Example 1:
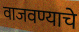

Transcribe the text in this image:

वाजवण्याचे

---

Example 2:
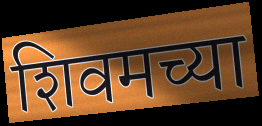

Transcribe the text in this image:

शिवमच्या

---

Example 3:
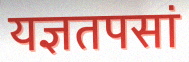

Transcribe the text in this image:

यज्ञतपसां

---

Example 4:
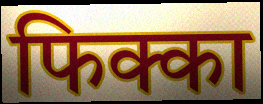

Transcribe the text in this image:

फिक्का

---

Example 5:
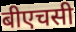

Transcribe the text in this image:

बीएचसी